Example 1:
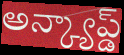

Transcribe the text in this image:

అన్క్యాప్డ్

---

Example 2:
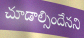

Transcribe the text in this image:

చూడాల్సిందేనని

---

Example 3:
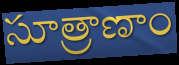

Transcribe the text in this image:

సూత్రాణాం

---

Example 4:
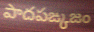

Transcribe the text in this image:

పాదపఙ్కజం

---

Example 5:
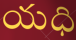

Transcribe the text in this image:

యధి